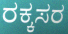
ರಕ್ಕಸರ